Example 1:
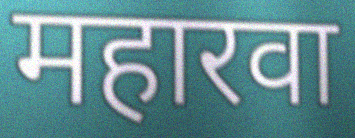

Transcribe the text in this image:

महारवा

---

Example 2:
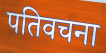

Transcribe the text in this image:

पतिवचना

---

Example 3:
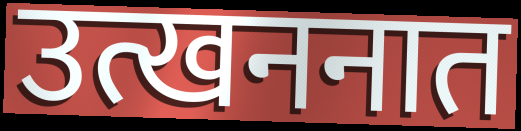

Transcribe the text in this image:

उत्खननात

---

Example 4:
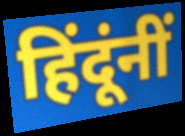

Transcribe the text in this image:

हिंदूंनीं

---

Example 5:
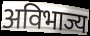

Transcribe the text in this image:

अविभाज्य